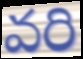
వరి